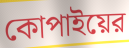
কোপাইয়ের